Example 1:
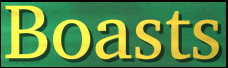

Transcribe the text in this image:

Boasts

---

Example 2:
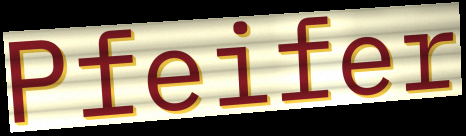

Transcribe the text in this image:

Pfeifer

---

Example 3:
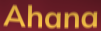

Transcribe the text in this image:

Ahana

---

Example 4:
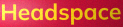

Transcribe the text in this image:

Headspace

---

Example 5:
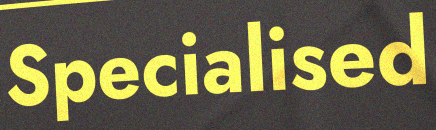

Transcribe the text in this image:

Specialised